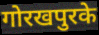
गोरखपुरके